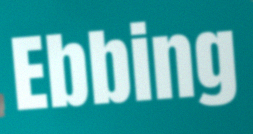
Ebbing